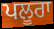
ਪਲੂਰਾ